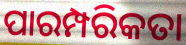
ପାରମ୍ପରିକତା